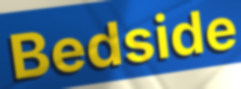
Bedside